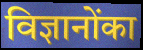
विज्ञानोंका